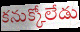
కనుక్కోలేడు